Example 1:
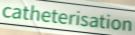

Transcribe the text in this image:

catheterisation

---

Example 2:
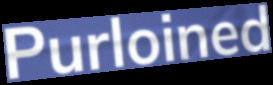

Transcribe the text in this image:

Purloined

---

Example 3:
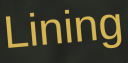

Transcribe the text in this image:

Lining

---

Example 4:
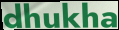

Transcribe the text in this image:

dhukha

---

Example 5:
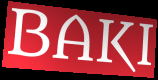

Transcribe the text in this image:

BAKI